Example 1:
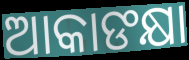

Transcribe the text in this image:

ଆକାଙକ୍ଷା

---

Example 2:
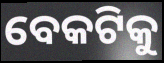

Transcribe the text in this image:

ବେକଟିକୁ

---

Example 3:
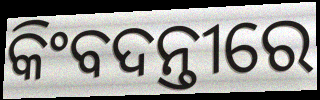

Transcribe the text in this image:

କିଂବଦନ୍ତୀରେ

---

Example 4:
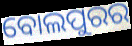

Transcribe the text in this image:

ବୋଲପୁରର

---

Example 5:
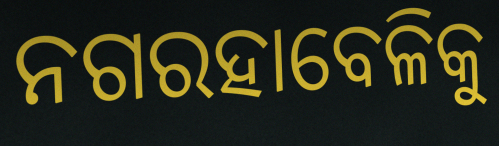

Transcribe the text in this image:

ନଗରହାବେଳିକୁ